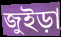
জুইড়া